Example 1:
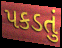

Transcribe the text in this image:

પકડતું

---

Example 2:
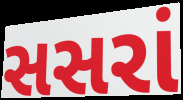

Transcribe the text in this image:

સસરાં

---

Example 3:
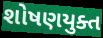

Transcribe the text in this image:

શોષણયુક્ત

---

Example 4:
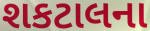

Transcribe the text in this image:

શકટાલના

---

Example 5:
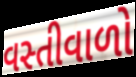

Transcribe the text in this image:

વસ્તીવાળો